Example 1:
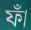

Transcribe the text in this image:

ফাঁ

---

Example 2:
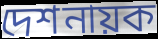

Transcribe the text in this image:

দেশনায়ক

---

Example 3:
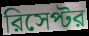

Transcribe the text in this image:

রিসেপ্টর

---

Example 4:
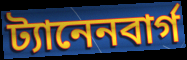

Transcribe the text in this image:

ট্যানেনবার্গ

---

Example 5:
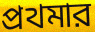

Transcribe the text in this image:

প্রথমার